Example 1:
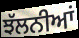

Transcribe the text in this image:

ਝੱਲਨੀਆਂ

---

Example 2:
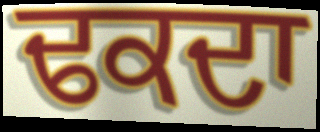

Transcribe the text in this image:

ਢਕਦਾ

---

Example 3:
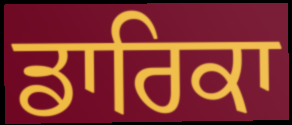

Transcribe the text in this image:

ਡਾਰਿਕਾ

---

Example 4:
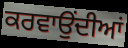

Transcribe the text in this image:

ਕਰਵਾਉਂਦੀਆਂ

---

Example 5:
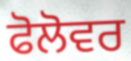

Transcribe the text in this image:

ਫੋਲੋਵਰ